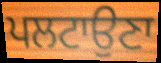
ਪਲਟਾਉਣਾ